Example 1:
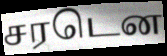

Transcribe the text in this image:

சரடென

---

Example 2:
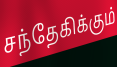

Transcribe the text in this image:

சந்தேகிக்கும்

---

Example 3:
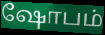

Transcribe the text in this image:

ஷோபம்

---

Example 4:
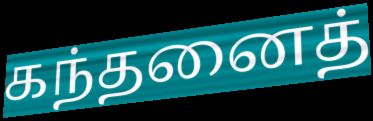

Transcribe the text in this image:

கந்தனைத்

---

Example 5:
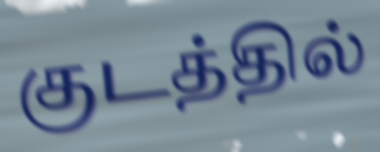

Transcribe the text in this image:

குடத்தில்